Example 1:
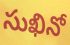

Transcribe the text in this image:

సుఖినో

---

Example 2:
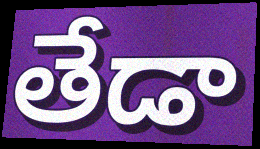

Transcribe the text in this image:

తేడా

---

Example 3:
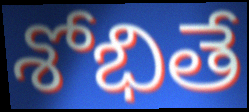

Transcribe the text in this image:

శోభితే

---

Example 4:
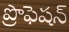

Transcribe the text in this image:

ప్రొఫెషన్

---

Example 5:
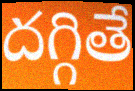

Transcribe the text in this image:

దగ్గితే